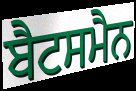
ਬੈਟਸਮੈਨ